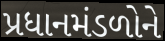
પ્રધાનમંડળોને